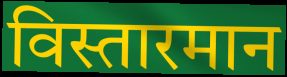
विस्तारमान